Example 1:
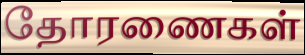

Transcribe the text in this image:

தோரணைகள்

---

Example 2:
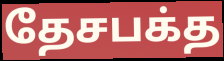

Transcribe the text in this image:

தேசபக்த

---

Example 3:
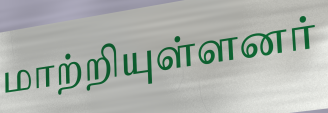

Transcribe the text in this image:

மாற்றியுள்ளனர்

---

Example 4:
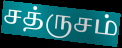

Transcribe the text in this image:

சத்ருசம்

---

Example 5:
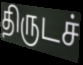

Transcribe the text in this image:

திருடச்